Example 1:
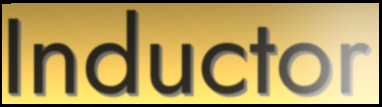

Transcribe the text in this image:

Inductor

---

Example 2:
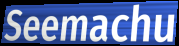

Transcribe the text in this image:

Seemachu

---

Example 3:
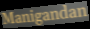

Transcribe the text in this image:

Manigandan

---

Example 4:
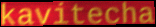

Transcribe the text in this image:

kavitecha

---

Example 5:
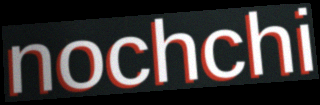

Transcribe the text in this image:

nochchi